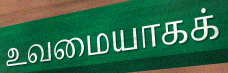
உவமையாகக்